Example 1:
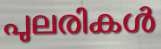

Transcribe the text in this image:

പുലരികൾ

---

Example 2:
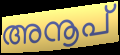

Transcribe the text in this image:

അനൂപ്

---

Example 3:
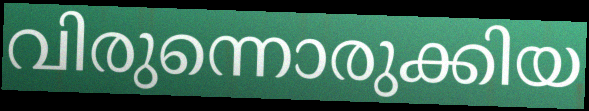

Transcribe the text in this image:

വിരുന്നൊരുക്കിയ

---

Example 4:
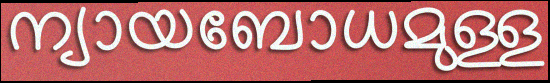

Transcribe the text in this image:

ന്യായബോധമുള്ള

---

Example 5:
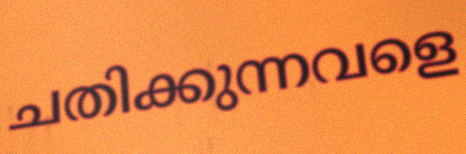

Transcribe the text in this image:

ചതിക്കുന്നവളെ